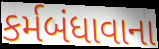
કર્મબંધાવાના